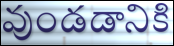
వుండడానికి